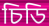
চিডি